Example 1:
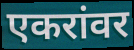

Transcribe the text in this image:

एकरांवर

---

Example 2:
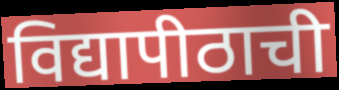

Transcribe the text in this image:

विद्यापीठाची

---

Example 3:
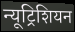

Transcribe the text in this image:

न्यूट्रिशियन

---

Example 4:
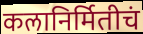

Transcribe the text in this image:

कलानिर्मितीचं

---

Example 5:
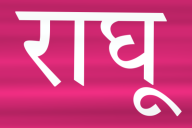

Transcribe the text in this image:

राघू